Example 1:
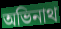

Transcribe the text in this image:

অভিনাথ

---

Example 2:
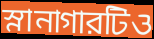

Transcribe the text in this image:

স্নানাগারটিও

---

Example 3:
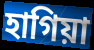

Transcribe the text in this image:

হাগিয়া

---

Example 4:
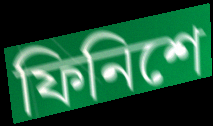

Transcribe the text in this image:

ফিনিশে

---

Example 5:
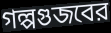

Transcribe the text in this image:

গল্পগুজবের